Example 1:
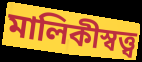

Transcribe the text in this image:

মালিকীস্বত্ত্ব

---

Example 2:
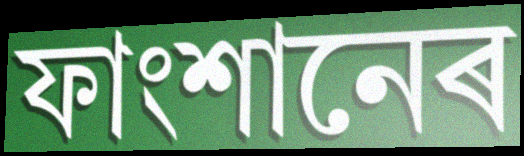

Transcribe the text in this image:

ফাংশানেৰ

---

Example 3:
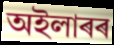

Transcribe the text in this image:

অইলাৰৰ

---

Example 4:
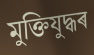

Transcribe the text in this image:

মুক্তিযুদ্ধৰ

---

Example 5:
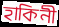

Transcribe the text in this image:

হাকিনী